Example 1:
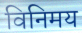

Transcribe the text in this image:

विनिमय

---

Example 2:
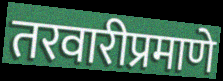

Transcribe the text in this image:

तरवारीप्रमाणे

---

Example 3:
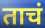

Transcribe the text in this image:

ताचं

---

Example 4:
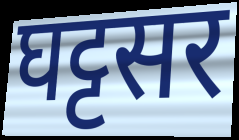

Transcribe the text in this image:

घट्टसर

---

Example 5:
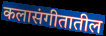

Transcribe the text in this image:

कलासंगीतातील